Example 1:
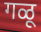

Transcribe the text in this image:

गळू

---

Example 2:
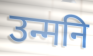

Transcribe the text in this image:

उन्मनि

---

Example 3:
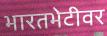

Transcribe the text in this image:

भारतभेटीवर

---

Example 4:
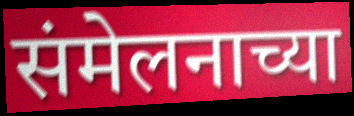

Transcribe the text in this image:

संमेलनाच्या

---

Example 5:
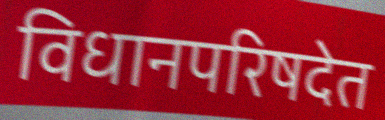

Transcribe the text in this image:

विधानपरिषदेत